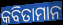
କବିତାମାନ